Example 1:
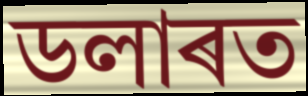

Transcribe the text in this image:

ডলাৰত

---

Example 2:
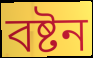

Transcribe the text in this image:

বষ্টন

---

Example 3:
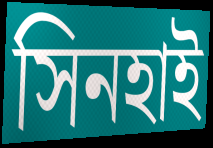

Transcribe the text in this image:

সিনহাই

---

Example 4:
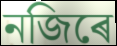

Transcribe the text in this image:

নজিৰে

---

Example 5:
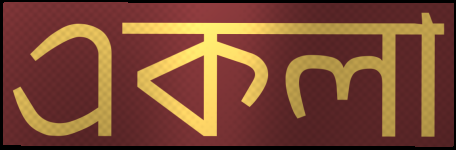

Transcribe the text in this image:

একলা